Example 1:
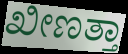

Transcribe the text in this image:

ಖೀಣತ್ತಾ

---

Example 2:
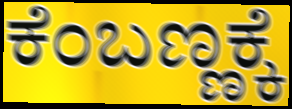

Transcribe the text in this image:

ಕೆಂಬಣ್ಣಕ್ಕೆ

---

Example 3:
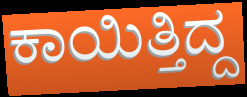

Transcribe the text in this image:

ಕಾಯಿತ್ತಿದ್ದ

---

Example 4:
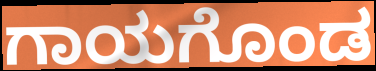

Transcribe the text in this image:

ಗಾಯಗೊಂಡ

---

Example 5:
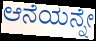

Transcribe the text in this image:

ಆನೆಯನ್ನೇ